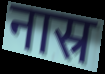
नास्र